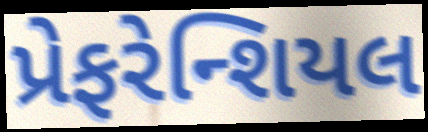
પ્રેફરેન્શિયલ